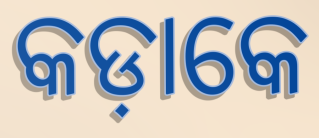
କଡ଼ାକେ